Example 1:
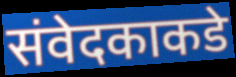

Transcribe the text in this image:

संवेदकाकडे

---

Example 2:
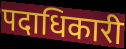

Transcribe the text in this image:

पदाधिकारी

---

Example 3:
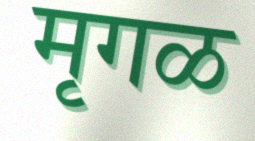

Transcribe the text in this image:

मृगळ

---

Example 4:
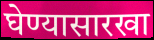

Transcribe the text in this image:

घेण्यासारखा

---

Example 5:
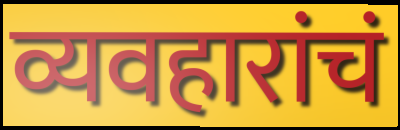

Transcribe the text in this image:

व्यवहारांचं